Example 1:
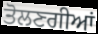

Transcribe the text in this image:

ਤੋਲਣਗੀਆਂ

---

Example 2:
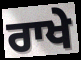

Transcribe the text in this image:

ਰਾਖੇ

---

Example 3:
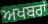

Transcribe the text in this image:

ਅਖਬਰਾਂ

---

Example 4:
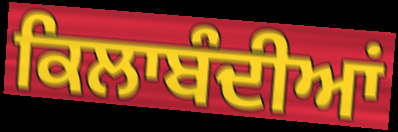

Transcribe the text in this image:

ਕਿਲਾਬੰਦੀਆਂ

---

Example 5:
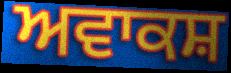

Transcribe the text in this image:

ਅਵਾਕਸ਼